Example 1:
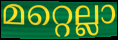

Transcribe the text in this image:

മറ്റെല്ലാ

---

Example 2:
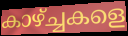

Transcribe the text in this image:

കാഴ്ച്ചകളെ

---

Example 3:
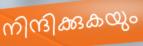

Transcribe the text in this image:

നിന്ദിക്കുകയും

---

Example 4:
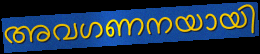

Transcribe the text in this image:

അവഗണനയായി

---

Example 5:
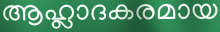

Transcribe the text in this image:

ആഹ്ലാദകരമായ